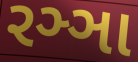
રઞ્ઞા